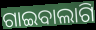
ଗାଇବାଲାଗି